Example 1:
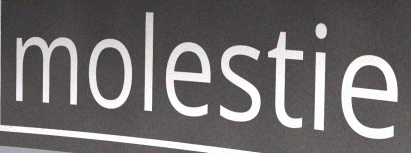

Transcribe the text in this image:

molestie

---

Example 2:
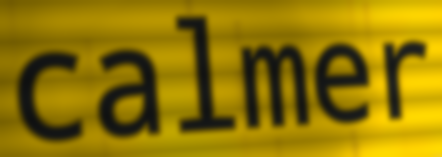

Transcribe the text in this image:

calmer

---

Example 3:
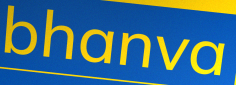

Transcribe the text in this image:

bhanva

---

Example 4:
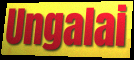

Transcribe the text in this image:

Ungalai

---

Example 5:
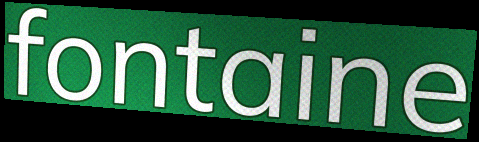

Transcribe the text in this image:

fontaine